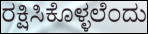
ರಕ್ಷಿಸಿಕೊಳ್ಳಲೆಂದು